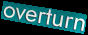
overturn